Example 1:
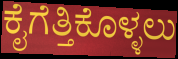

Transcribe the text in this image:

ಕೈಗೆತ್ತಿಕೊಳ್ಳಲು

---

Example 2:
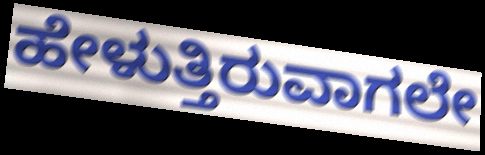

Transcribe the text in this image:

ಹೇಳುತ್ತಿರುವಾಗಲೇ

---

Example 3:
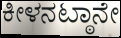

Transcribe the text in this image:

ಕೀಳನಟ್ಠಾನೇ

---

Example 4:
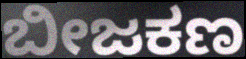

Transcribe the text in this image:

ಬೀಜಕಣ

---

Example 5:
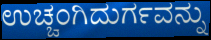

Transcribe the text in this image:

ಉಚ್ಚಂಗಿದುರ್ಗವನ್ನು